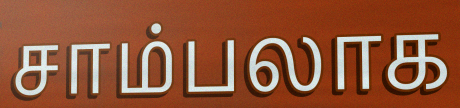
சாம்பலாக